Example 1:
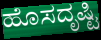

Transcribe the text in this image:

ಹೊಸದೃಷ್ಟಿ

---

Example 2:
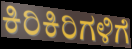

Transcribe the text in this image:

ಕಿರಿಕಿರಿಗಳಿಗೆ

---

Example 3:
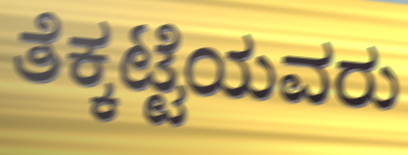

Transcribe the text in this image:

ತೆಕ್ಕಟ್ಟೆಯವರು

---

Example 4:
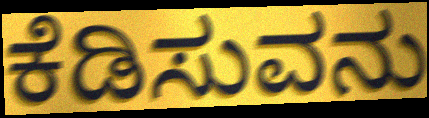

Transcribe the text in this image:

ಕೆಡಿಸುವನು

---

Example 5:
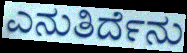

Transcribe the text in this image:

ಎನುತಿರ್ದೆನು